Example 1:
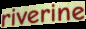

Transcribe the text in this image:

riverine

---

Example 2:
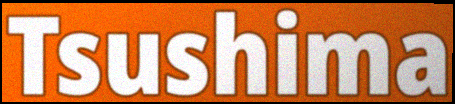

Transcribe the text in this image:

Tsushima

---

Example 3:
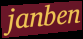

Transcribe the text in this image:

janben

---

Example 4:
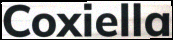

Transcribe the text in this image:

Coxiella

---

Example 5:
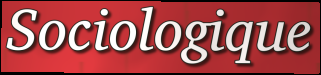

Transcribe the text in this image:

Sociologique